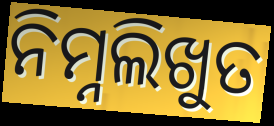
ନିମ୍ନଲିଖୁତ